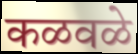
कळवळे